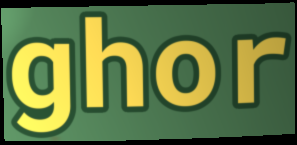
ghor